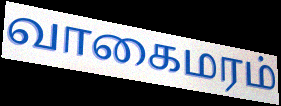
வாகைமரம்